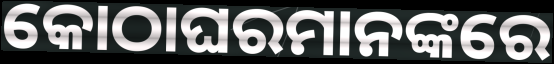
କୋଠାଘରମାନଙ୍କରେ